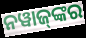
ନୱାଜ୍‍ଙ୍କର